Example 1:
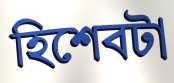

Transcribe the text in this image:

হিশেবটা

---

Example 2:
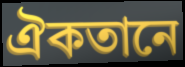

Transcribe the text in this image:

ঐকতানে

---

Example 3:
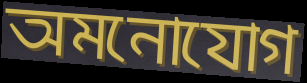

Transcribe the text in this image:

অমনোযোগ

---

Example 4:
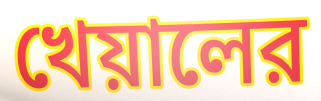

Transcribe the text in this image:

খেয়ালের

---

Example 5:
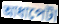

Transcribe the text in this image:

আধাপেটা